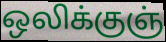
ஒலிக்குஞ்